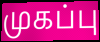
முகப்பு